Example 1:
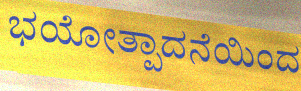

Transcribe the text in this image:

ಭಯೋತ್ಪಾದನೆಯಿಂದ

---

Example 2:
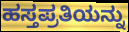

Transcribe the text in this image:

ಹಸ್ತಪ್ರತಿಯನ್ನು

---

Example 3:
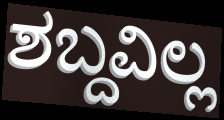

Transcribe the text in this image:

ಶಬ್ದವಿಲ್ಲ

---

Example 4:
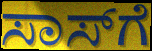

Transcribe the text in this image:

ಸಾಸ್‌ಗೆ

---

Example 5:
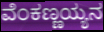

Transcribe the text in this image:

ವೆಂಕಣ್ಣಯ್ಯನ